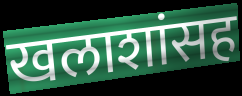
खलाशांसह